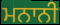
ਮਨਾਨੀ